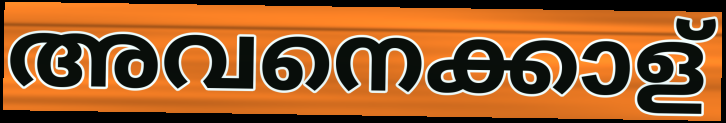
അവനെക്കാള്